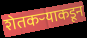
शेतकऱ्याकडून